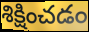
శిక్షించడం